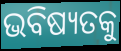
ଭବିଷ୍ୟତକୁ